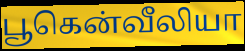
பூகென்வீலியா